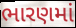
ભારણમાં